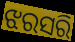
ଝରସରି